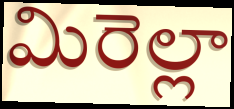
మిరెల్లా